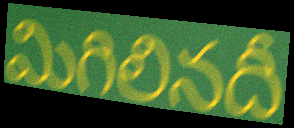
మిగిలినదీ